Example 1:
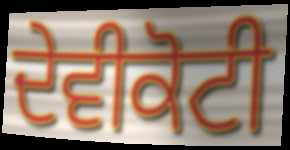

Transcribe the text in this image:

ਦੇਵੀਕੋਟੀ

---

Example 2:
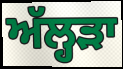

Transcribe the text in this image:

ਅੱਲ੍ਹੜਾ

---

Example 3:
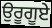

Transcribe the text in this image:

ਉਰੂਗੂਏ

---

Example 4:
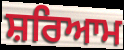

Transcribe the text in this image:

ਸ਼ਰਿਆਮ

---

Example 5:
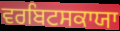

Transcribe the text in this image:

ਵਰਬਿਟਸਕਾਯਾ